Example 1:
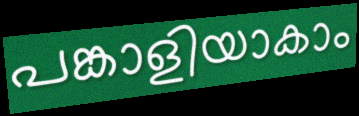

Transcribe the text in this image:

പങ്കാളിയാകാം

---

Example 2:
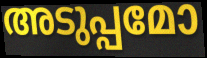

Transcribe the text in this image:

അടുപ്പമോ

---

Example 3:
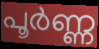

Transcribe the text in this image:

പൂർണ്ണ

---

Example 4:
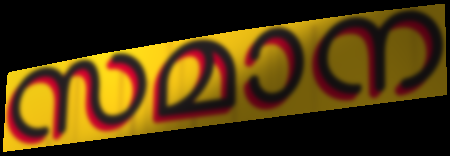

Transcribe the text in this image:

സമാന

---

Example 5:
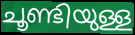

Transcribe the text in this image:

ചൂണ്ടിയുള്ള